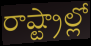
రాష్ట్రాల్లో